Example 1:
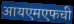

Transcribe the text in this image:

आयएमएफची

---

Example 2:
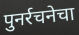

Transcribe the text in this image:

पुनर्रचनेचा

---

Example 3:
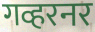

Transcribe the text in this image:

गव्हरनर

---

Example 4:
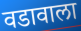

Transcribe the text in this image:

वडावाला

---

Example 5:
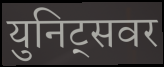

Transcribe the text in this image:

युनिट्सवर